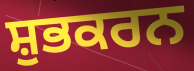
ਸ਼ੁਭਕਰਨ